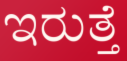
ಇರುತ್ತೆ